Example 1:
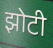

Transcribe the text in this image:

झोटी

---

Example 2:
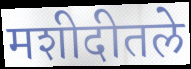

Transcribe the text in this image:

मशीदीतले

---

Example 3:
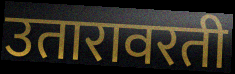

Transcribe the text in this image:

उतारावरती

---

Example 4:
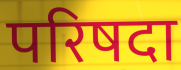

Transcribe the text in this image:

परिषदा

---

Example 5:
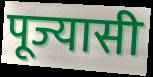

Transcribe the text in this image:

पूज्यासी